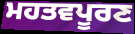
ਮਹਤਵਪੂਰਣ